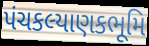
પંચકલ્યાણકભૂમિ